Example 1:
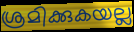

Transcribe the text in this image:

ശ്രമിക്കുകയല്ല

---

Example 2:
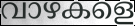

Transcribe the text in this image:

വാഴകളെ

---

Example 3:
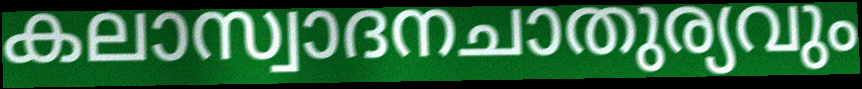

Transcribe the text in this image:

കലാസ്വാദനചാതുര്യവും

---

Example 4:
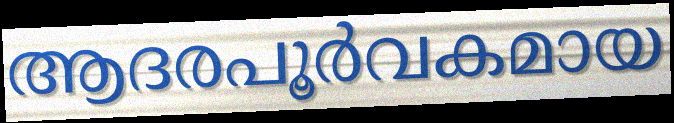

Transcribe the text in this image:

ആദരപൂർവകമായ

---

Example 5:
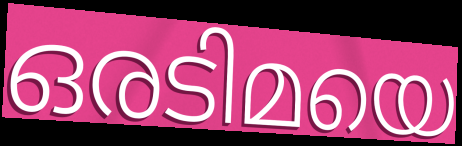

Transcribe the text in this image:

ഒരടിമയെ